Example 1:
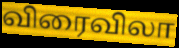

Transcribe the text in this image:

விரைவிலா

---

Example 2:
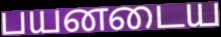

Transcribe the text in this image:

பயனடைய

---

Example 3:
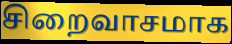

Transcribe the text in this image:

சிறைவாசமாக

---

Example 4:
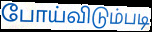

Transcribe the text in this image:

போய்விடும்படி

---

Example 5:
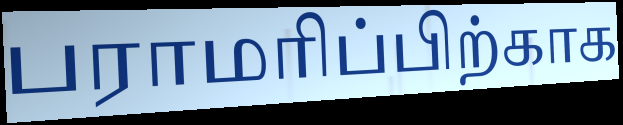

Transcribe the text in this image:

பராமரிப்பிற்காக